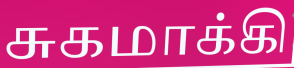
சுகமாக்கி